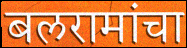
बलरामांचा